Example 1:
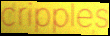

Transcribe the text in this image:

cripples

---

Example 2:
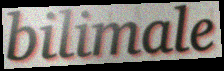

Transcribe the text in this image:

bilimale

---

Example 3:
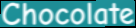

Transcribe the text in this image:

Chocolate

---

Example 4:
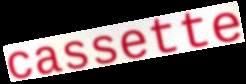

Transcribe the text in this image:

cassette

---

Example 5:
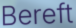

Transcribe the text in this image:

Bereft